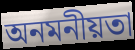
অনমনীয়তা